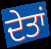
ਦੇਤਾਂ